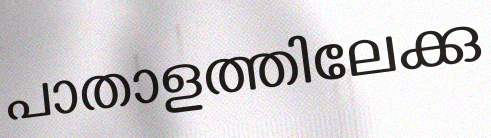
പാതാളത്തിലേക്കു